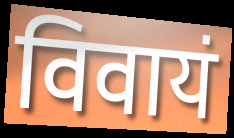
विवायं